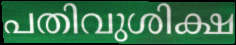
പതിവുശിക്ഷ